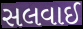
સલવાઈ